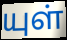
யுள்